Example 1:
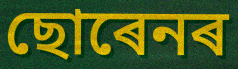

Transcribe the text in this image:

ছোৰেনৰ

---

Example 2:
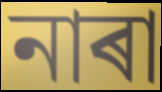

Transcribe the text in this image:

নাৰা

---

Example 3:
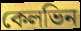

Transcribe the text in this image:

কেলভিন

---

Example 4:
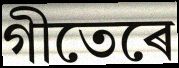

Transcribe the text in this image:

গীতেৰে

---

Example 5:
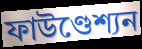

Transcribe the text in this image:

ফাউণ্ডেশ্যন